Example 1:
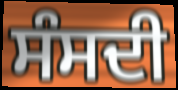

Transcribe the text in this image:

ਸੰਸਦੀ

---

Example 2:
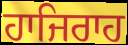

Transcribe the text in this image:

ਹਾਜਿਰਾਹ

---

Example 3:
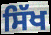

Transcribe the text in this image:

ਸਿੱਖ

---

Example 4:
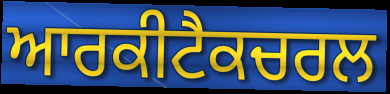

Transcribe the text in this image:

ਆਰਕੀਟੈਕਚਰਲ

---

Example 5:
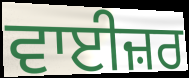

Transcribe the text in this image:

ਵਾਈਜ਼ਰ